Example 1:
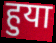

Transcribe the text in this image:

हुया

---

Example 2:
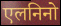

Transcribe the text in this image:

एलनिनो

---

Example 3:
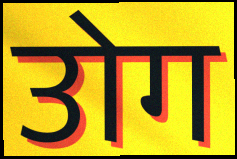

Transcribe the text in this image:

उोग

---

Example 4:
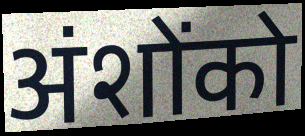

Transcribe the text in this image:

अंशोंको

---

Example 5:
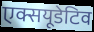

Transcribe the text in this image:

एक्सयूडेटिव